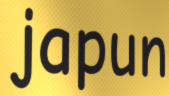
japun